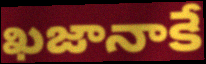
ఖజానాకే